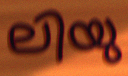
ലിയു